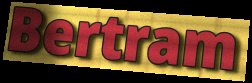
Bertram